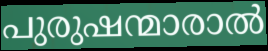
പുരുഷന്മാരാൽ